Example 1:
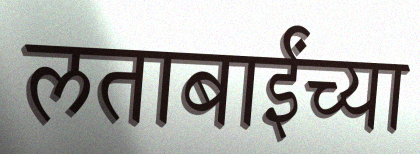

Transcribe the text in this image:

लताबाईंच्या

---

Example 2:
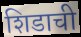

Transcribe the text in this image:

शिडाची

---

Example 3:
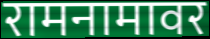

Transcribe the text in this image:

रामनामावर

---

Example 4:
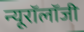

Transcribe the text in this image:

न्यूरॉलॉजी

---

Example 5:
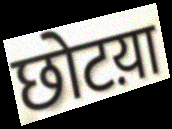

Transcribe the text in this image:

छोटय़ा